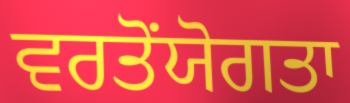
ਵਰਤੋਂਯੋਗਤਾ